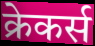
क्रेकर्स